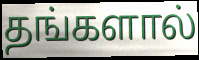
தங்களால்